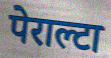
पेराल्टा